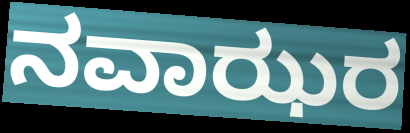
ನವಾಝರ